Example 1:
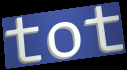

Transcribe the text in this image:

tot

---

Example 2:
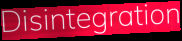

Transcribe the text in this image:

Disintegration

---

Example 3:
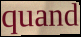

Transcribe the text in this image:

quand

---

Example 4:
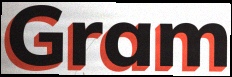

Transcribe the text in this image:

Gram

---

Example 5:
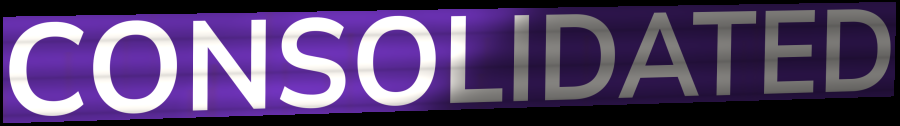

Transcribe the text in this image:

CONSOLIDATED